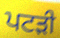
ਪਟੜੀ